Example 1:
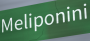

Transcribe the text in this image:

Meliponini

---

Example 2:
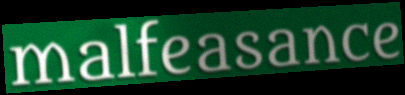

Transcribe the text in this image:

malfeasance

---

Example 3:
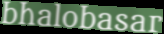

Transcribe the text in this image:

bhalobasar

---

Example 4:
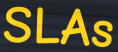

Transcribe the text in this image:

SLAs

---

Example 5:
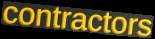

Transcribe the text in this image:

contractors